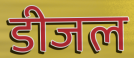
डीजल